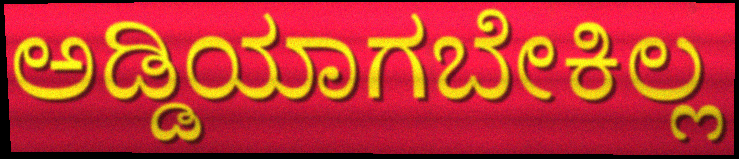
ಅಡ್ಡಿಯಾಗಬೇಕಿಲ್ಲ